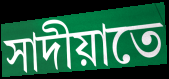
সাদীয়াতে